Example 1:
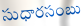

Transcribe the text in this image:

సుధారసంబు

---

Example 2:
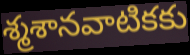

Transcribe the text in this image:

శ్మశానవాటికకు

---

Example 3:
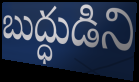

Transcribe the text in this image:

బుద్ధుడిని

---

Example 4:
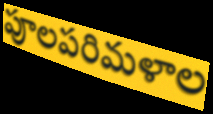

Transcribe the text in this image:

పూలపరిమళాల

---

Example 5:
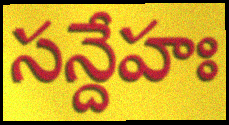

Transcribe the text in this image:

సన్దేహః